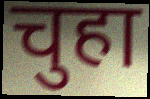
चुहा